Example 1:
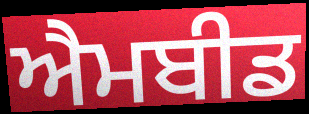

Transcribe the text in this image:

ਐਮਬੀਡ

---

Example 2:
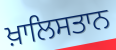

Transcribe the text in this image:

ਖ਼ਾਲਿਸਤਾਨ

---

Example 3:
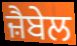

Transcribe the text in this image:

ਜ਼ੈਬੇਲ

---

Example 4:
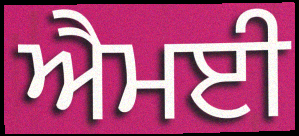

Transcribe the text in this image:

ਐਮਈ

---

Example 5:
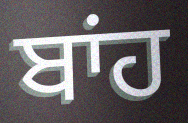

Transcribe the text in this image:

ਬਾਂਹ